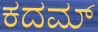
ಕದಮ್